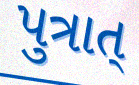
પુત્રાત્